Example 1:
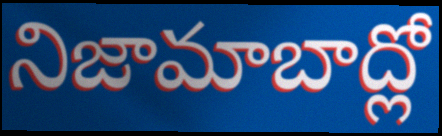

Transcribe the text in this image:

నిజామాబాద్లో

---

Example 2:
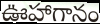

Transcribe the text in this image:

ఊహాగానం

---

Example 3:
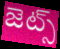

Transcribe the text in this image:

జెట్స్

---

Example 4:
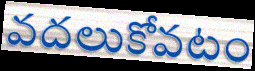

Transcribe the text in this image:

వదలుకోవటం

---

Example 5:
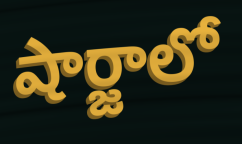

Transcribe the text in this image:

షార్జాలో